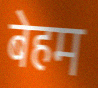
बेहम